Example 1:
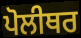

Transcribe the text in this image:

ਪੋਲੀਥਰ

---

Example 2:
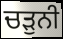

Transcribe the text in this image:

ਚੜੁਨੀ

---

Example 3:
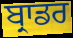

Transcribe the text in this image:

ਬ੍ਰਾਡਰ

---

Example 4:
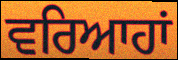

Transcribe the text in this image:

ਵਰਿਆਹਾਂ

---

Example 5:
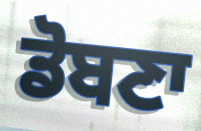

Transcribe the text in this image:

ਡੋਬਣਾ